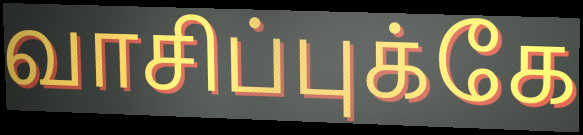
வாசிப்புக்கே